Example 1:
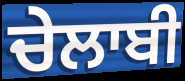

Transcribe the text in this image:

ਚੇਲਾਬੀ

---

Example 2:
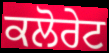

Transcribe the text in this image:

ਕਲੋਰੇਟ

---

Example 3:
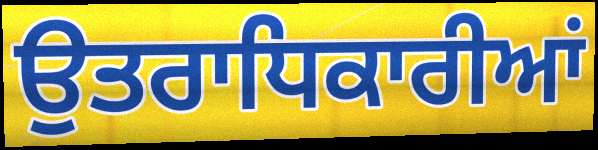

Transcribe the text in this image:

ਉਤਰਾਧਿਕਾਰੀਆਂ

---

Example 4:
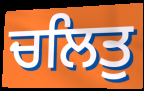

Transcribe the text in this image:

ਚਲਿਤੁ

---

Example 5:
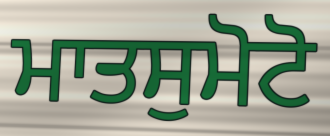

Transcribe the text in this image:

ਮਾਤਸੁਮੋਟੋ